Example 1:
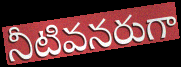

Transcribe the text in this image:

నీటివనరుగా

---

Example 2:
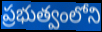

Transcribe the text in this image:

ప్రభుత్వంలోని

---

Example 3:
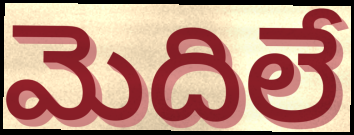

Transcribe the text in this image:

మెదిలే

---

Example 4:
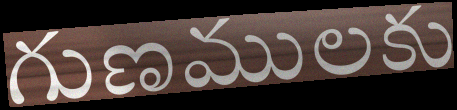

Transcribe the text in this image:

గుణములకు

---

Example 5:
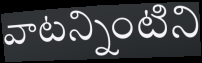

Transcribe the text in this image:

వాటన్నింటిని